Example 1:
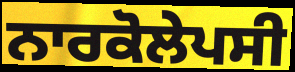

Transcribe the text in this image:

ਨਾਰਕੋਲੇਪਸੀ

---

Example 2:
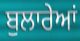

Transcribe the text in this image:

ਬੁਲਾਰੇਆਂ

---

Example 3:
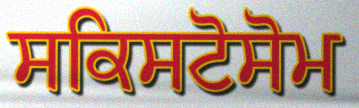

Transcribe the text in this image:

ਸਕਿਸਟੋਸੋਮ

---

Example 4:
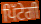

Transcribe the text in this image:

ਪਿੱਟੇਗੀ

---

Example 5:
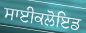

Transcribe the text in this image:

ਸਾਈਕਲੋਇਡ